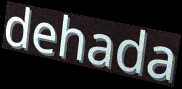
dehada